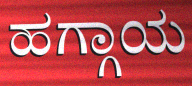
ಹಗ್ಗಾಯ